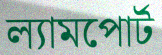
ল্যামপোর্ট